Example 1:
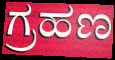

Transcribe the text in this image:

ಗ್ರಹಣ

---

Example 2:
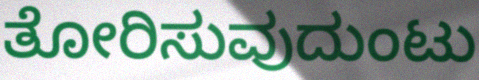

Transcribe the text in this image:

ತೋರಿಸುವುದುಂಟು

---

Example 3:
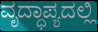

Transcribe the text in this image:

ವೃದ್ಧಾಪ್ಯದಲ್ಲಿ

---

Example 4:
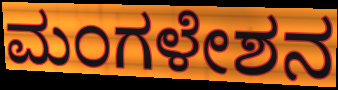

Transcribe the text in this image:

ಮಂಗಳೇಶನ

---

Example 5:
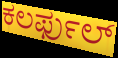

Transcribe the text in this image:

ಕಲರ್ಫುಲ್